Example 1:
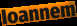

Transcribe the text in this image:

Ioannem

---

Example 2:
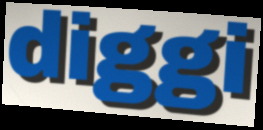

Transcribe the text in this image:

diggi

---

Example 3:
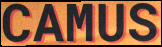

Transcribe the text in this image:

CAMUS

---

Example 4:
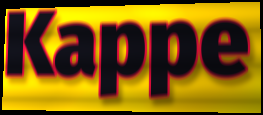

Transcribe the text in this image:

Kappe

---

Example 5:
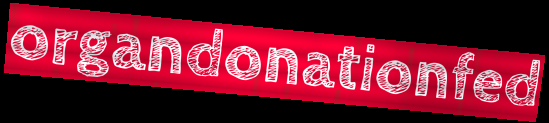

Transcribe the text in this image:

organdonationfed